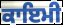
ਕਾਇਮੀ